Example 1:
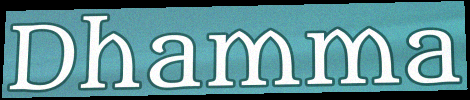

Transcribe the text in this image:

Dhamma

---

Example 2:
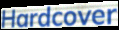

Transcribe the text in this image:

Hardcover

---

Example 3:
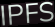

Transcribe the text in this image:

IPFS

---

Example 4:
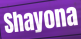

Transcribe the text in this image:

Shayona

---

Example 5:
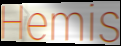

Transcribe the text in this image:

Hemis